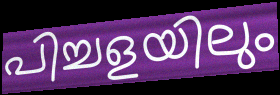
പിച്ചളയിലും